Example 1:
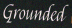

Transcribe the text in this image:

Grounded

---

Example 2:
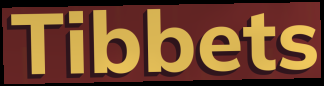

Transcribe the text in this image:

Tibbets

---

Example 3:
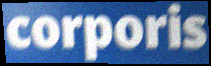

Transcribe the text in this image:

corporis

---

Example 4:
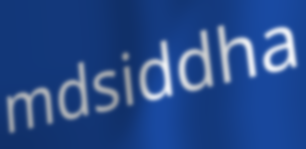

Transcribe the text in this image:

mdsiddha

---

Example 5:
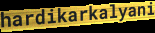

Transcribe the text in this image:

hardikarkalyani